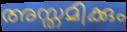
അസ്തമിക്കും